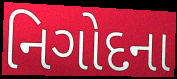
નિગોદના